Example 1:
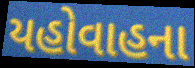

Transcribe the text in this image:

યહોવાહના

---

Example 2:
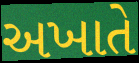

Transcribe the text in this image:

અખાતે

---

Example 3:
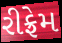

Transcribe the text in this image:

રીફ્રેમ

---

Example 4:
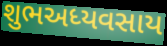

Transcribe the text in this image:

શુભઅધ્યવસાય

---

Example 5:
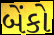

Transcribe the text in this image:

બેંકો